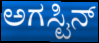
ಅಗಸ್ಟಿನ್